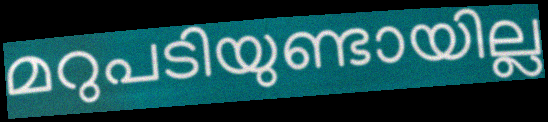
മറുപടിയുണ്ടായില്ല